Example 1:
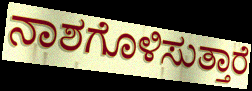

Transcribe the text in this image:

ನಾಶಗೊಳಿಸುತ್ತಾರೆ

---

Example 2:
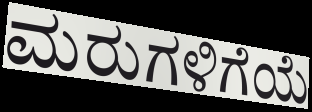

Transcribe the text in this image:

ಮರುಗಳಿಗೆಯೆ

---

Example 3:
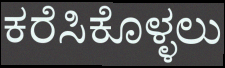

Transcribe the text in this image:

ಕರೆಸಿಕೊಳ್ಳಲು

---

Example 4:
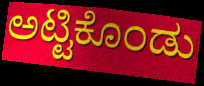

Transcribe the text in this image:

ಅಟ್ಟಿಕೊಂಡು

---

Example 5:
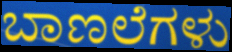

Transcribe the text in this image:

ಬಾಣಲೆಗಳು